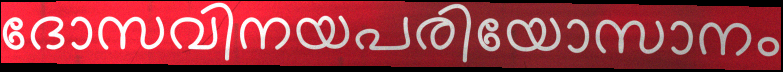
ദോസവിനയപരിയോസാനം